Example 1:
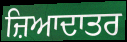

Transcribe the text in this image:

ਜ਼ਿਆਦਾਤਰ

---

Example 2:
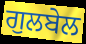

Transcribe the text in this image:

ਗੁਲਬੇਲ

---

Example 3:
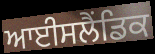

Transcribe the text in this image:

ਆਈਸਲੈਂਡਿਕ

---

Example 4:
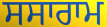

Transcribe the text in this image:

ਸਸਾਰਾਮ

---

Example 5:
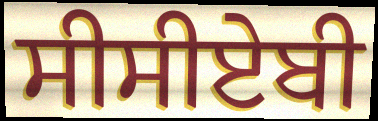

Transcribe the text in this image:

ਸੀਸੀਏਬੀ